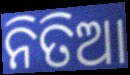
ନିତିଆ